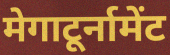
मेगाटूर्नामेंट